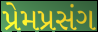
પ્રેમપ્રસંગ